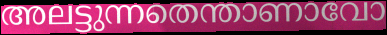
അലട്ടുന്നതെന്താണാവോ